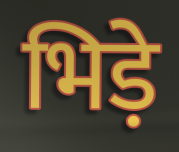
भिड़े